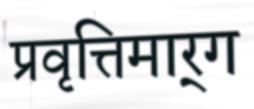
प्रवृत्तिमार्ग